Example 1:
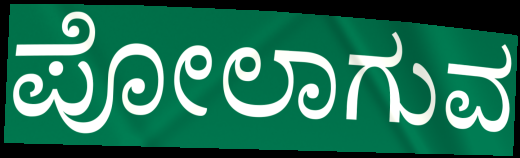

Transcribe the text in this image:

ಪೋಲಾಗುವ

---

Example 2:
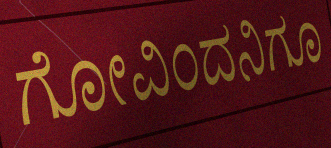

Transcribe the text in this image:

ಗೋವಿಂದನಿಗೂ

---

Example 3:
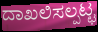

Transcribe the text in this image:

ದಾಖಲಿಸಲ್ಪಟ್ಟ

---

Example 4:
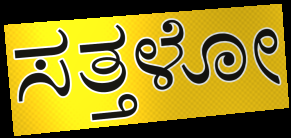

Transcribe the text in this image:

ಸತ್ತಳೋ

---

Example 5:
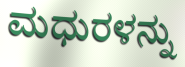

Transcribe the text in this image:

ಮಧುರಳನ್ನು